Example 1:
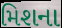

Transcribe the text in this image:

મિશના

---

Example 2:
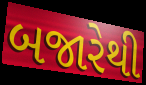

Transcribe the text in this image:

બજારેથી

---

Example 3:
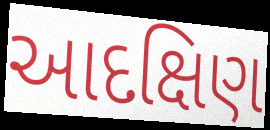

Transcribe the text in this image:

આદક્ષિણ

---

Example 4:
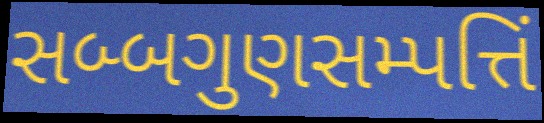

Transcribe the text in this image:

સબ્બગુણસમ્પત્તિં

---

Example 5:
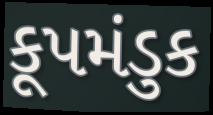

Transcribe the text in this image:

કૂપમંડુક